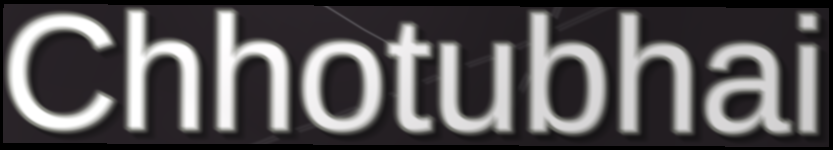
Chhotubhai